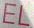
EL